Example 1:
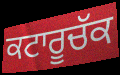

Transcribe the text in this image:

ਕਟਾਰੂਚੱਕ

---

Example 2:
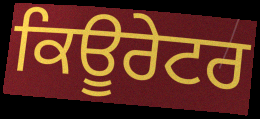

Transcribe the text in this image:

ਕਿਊਰੇਟਰ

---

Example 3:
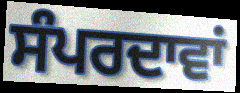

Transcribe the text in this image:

ਸੰਪਰਦਾਵਾਂ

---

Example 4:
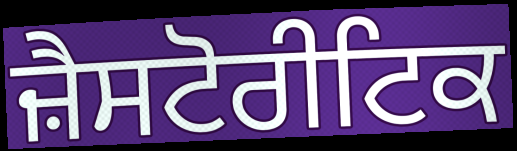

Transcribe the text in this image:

ਜ਼ੈਸਟੋਰੀਟਿਕ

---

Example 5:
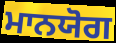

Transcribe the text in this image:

ਮਾਨਯੋਗ